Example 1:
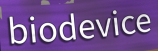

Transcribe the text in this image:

biodevice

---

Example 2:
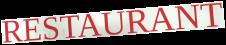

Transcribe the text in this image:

RESTAURANT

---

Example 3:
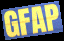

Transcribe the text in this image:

GFAP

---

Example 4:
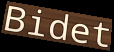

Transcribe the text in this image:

Bidet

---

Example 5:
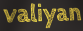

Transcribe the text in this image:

valiyan